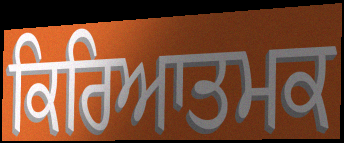
ਕਿਰਿਆਤਮਕ